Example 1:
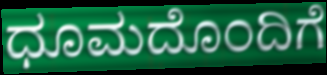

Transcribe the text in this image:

ಧೂಮದೊಂದಿಗೆ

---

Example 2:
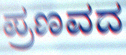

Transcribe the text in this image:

ಪ್ರಣವದ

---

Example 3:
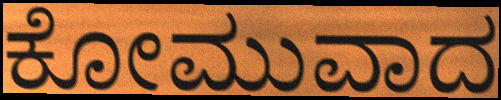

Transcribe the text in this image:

ಕೋಮುವಾದ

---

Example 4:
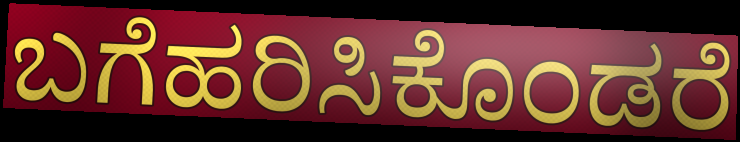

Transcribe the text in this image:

ಬಗೆಹರಿಸಿಕೊಂಡರೆ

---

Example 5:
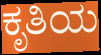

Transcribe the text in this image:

ಕೃತಿಯ